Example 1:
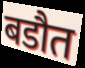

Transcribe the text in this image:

बडौत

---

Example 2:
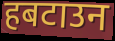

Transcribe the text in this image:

हबटाउन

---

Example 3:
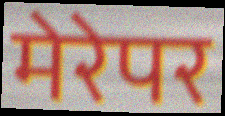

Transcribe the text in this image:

मेरेपर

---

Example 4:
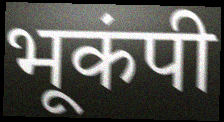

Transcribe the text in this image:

भूकंपी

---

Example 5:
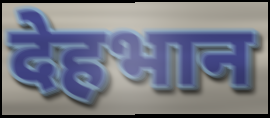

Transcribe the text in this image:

देहभान